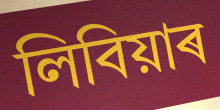
লিবিয়াৰ